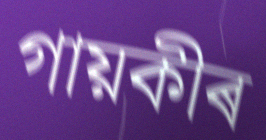
গায়কীৰ